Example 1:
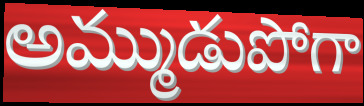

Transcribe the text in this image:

అమ్ముడుపోగా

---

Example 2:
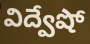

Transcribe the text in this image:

విద్వేషో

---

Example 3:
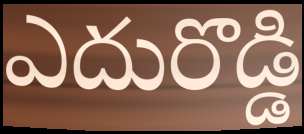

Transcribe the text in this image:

ఎదురొడ్డి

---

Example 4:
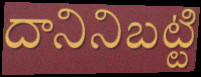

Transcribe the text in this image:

దానినిబట్టి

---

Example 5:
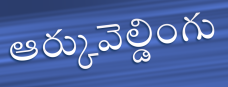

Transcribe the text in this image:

ఆర్కువెల్డింగు